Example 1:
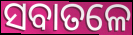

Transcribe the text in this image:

ସବାତଳେ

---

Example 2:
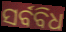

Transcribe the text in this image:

ସର୍ବବିଧ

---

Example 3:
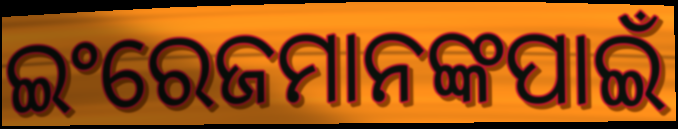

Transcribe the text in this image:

ଇଂରେଜମାନଙ୍କପାଇଁ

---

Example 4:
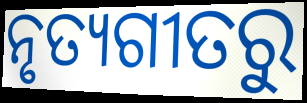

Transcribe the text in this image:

ନୃତ୍ୟଗୀତରୁ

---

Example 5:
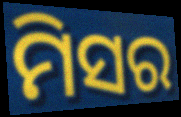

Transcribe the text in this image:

ମିସର